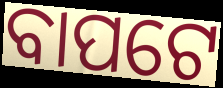
ବାପଟେ